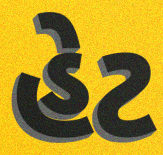
હેટ